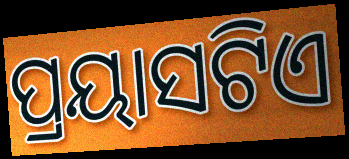
ପ୍ରୟାସଟିଏ